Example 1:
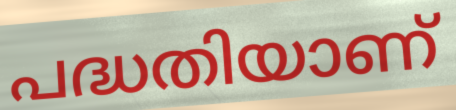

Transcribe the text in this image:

പദ്ധതിയാണ്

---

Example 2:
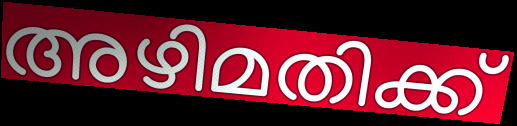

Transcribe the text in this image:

അഴിമതിക്ക്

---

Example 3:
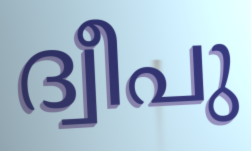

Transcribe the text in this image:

ദ്വീപു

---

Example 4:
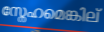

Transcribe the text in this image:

സ്നേഹമെങ്കില്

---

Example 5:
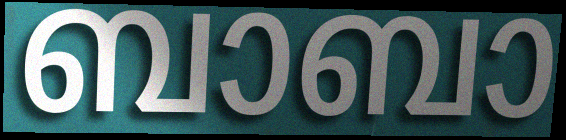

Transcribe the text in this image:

ബാബാ